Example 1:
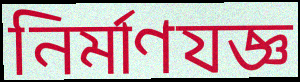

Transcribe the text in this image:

নির্মাণযজ্ঞ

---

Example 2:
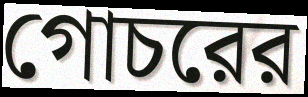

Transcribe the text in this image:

গোচরের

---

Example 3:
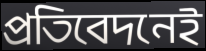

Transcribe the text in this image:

প্রতিবেদনেই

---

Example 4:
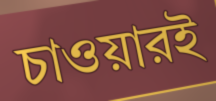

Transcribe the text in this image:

চাওয়ারই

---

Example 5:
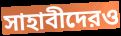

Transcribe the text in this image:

সাহাবীদেরও